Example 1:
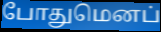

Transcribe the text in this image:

போதுமெனப்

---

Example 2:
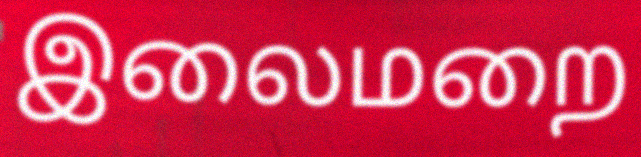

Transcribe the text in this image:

இலைமறை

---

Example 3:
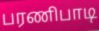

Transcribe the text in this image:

பரணிபாடி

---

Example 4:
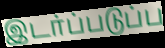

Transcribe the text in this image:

இடர்ப்படுப்ப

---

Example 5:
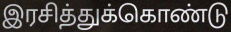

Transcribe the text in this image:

இரசித்துக்கொண்டு